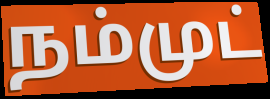
நம்முட்